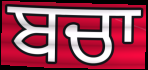
ਬਚਾ